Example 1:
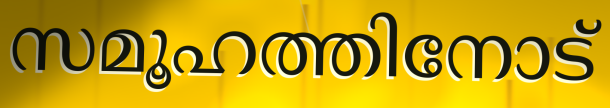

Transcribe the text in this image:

സമൂഹത്തിനോട്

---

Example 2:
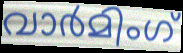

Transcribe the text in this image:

വാർമിംഗ്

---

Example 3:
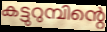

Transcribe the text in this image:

കട്ടുറുമ്പിന്റെ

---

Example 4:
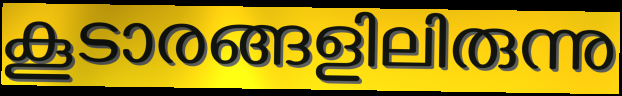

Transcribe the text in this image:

കൂടാരങ്ങളിലിരുന്നു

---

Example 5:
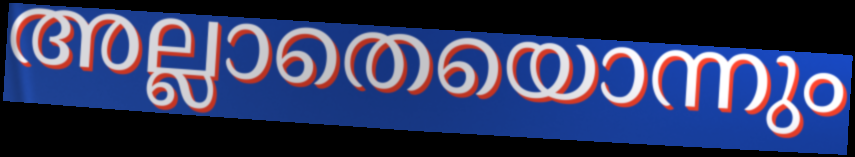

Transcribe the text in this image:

അല്ലാതെയൊന്നും